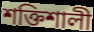
শক্তিশালী